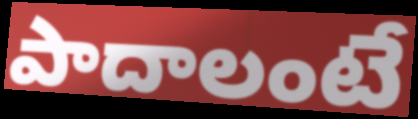
పాదాలంటే